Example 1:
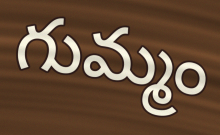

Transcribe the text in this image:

గుమ్మం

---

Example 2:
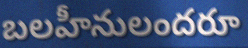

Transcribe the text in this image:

బలహీనులందరూ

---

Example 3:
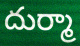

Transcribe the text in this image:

దుర్మా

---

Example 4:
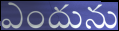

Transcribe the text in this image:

ఎందును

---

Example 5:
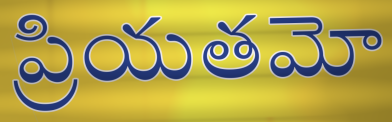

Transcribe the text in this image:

ప్రియతమో